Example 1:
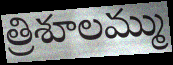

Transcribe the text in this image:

త్రిశూలమ్ము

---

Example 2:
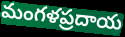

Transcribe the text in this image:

మంగళప్రదాయ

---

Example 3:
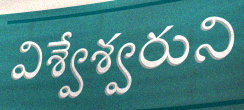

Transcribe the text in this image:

విశ్వేశ్వరుని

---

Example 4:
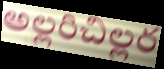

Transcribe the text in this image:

అల్లరిచిల్లర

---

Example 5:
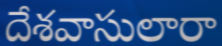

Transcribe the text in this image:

దేశవాసులారా